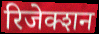
रिजेक्शन